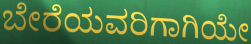
ಬೇರೆಯವರಿಗಾಗಿಯೇ